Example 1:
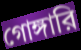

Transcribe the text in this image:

গোঙ্গারি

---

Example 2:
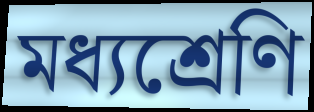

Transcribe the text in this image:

মধ্যশ্রেণি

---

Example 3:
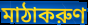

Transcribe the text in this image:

মাঠাকরুণ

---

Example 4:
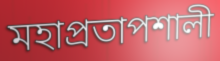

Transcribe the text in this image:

মহাপ্রতাপশালী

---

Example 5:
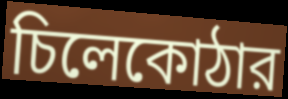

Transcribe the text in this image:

চিলেকোঠার